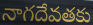
నాగదేవతకు